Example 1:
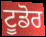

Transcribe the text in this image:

ਟੂਡੋਰ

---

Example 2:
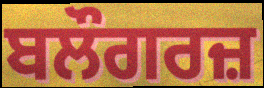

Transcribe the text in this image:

ਬਲੌਗਰਜ਼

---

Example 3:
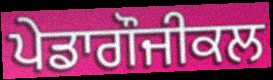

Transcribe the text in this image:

ਪੇਡਾਗੌਜੀਕਲ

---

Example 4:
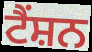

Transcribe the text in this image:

ਟੈਂਸ਼ਨ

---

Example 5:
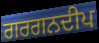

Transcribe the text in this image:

ਗਰਗਨਦੀਪ